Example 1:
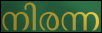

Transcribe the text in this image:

നിരന്ന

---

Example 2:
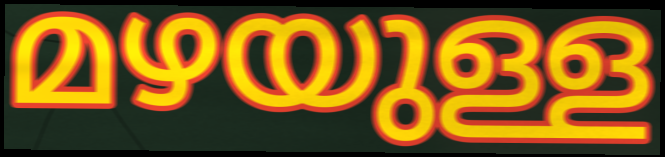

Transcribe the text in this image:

മഴയുള്ള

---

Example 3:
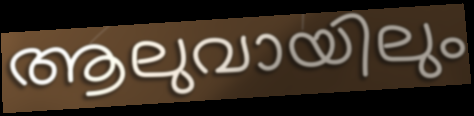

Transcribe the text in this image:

ആലുവായിലും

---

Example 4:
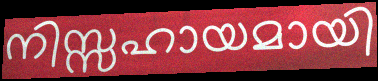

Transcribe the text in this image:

നിസ്സഹായമായി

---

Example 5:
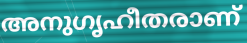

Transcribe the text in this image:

അനുഗൃഹീതരാണ്